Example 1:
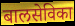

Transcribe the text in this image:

बालसेविका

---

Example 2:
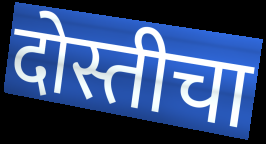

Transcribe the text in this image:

दोस्तीचा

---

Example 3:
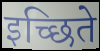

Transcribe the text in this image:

इच्छिते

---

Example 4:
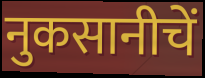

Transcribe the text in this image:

नुकसानीचें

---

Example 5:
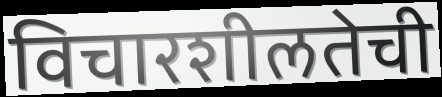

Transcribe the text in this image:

विचारशीलतेची